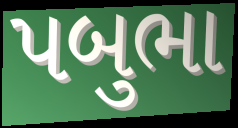
પબુભા